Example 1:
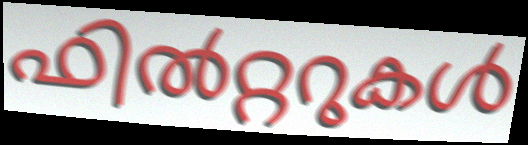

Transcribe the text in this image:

ഫിൽറ്ററുകൾ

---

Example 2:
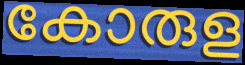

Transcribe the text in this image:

കോരുള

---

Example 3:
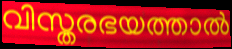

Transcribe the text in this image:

വിസ്തരഭയത്താൽ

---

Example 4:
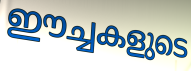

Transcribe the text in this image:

ഈച്ചകളുടെ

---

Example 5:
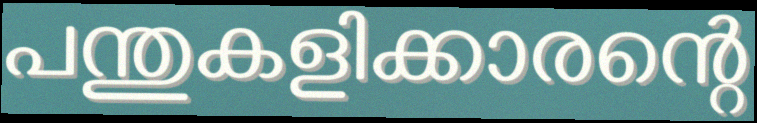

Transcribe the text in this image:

പന്തുകളിക്കാരന്റെ